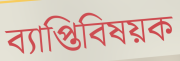
ব্যাপ্তিবিষয়ক